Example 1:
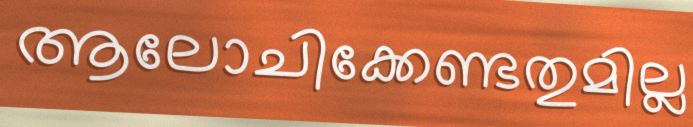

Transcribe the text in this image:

ആലോചിക്കേണ്ടതുമില്ല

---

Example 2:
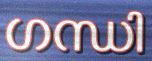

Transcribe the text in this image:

ഗന്ധി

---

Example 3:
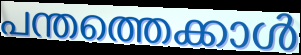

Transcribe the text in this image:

പന്തത്തെക്കാൾ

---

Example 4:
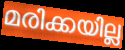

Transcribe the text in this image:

മരിക്കയില്ല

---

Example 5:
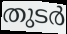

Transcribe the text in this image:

തുടർ